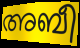
അബീ